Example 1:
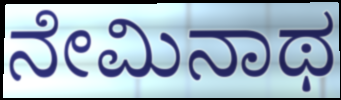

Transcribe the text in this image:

ನೇಮಿನಾಥ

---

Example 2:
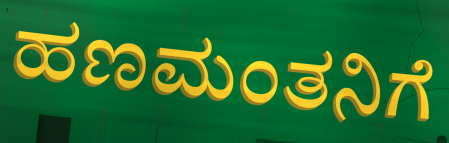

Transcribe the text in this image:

ಹಣಮಂತನಿಗೆ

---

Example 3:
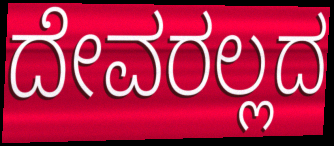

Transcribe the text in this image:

ದೇವರಲ್ಲದ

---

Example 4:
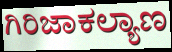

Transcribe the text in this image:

ಗಿರಿಜಾಕಲ್ಯಾಣ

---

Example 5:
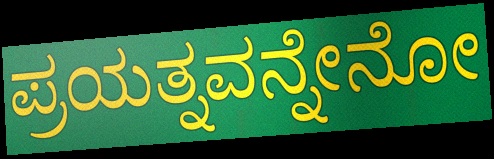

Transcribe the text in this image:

ಪ್ರಯತ್ನವನ್ನೇನೋ